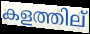
കളത്തില്